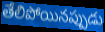
తేలిపోయినప్పుడు